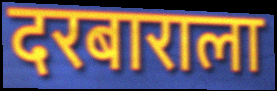
दरबाराला